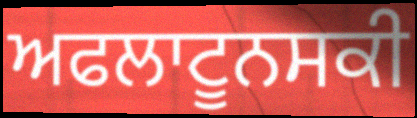
ਅਫਲਾਟੂਨਸਕੀ